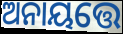
ଅନାୟତ୍ତେ